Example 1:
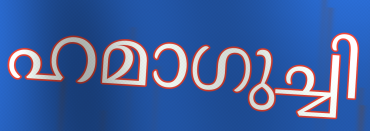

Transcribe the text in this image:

ഹമാഗുച്ചി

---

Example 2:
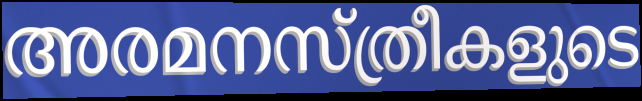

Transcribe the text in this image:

അരമനസ്ത്രീകളുടെ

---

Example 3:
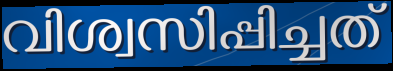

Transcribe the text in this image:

വിശ്വസിപ്പിച്ചത്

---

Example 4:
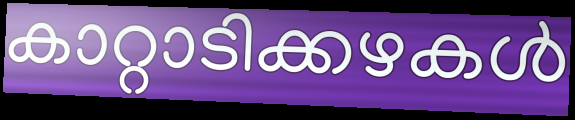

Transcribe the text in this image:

കാറ്റാടിക്കഴകൾ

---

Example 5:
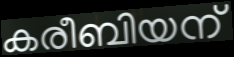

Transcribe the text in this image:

കരീബിയന്